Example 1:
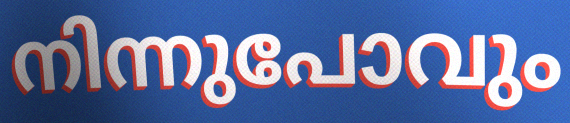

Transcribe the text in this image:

നിന്നുപോവും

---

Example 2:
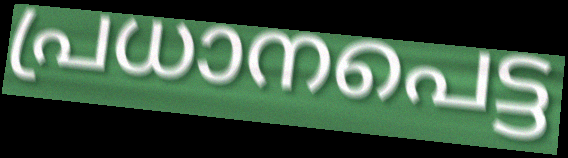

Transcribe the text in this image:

പ്രധാനപെട്ട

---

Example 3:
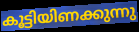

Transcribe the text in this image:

കൂട്ടിയിണക്കുന്നു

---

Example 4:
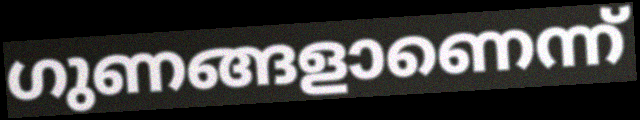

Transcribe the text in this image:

ഗുണങ്ങളാണെന്ന്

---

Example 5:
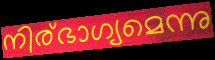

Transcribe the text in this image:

നിര്ഭാഗ്യമെന്നു